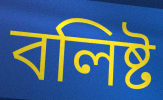
বলিষ্ট